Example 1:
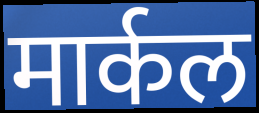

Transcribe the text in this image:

मार्कल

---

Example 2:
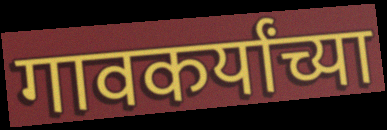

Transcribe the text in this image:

गावकर्यांच्या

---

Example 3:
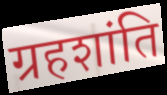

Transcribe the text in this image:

ग्रहशांति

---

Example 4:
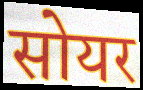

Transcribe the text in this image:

सोयर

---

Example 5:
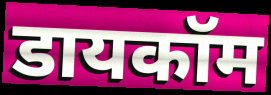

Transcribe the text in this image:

डायकॉम